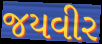
જયવીર